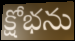
క్షోభను